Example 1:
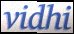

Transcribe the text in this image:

vidhi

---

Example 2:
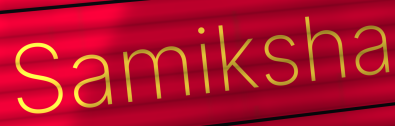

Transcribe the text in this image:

Samiksha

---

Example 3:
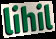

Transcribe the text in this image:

lihil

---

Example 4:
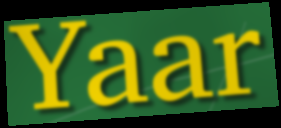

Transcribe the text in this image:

Yaar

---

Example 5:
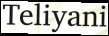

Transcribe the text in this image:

Teliyani